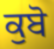
ਕੁਬੋ